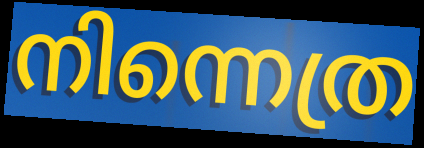
നിന്നെത്ര